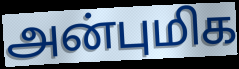
அன்புமிக